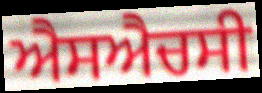
ਐਸਐਚਸੀ